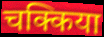
चक्किया